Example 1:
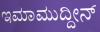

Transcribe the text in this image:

ಇಮಾಮುದ್ದೀನ್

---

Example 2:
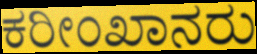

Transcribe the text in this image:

ಕರೀಂಖಾನರು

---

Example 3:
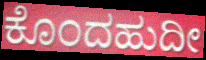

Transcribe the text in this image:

ಕೊಂದಹುದೀ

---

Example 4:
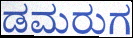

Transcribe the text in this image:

ಡಮರುಗ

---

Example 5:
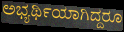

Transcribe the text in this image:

ಅಭ್ಯರ್ಥಿಯಾಗಿದ್ದರೂ